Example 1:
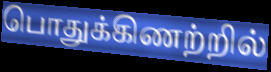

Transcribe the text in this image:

பொதுக்கிணற்றில்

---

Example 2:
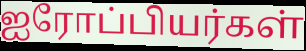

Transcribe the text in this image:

ஐரோப்பியர்கள்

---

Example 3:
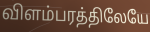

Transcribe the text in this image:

விளம்பரத்திலேயே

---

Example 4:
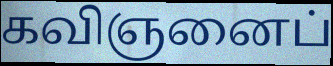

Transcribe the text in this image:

கவிஞனைப்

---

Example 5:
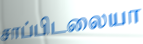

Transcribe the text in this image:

சாப்பிடலையா